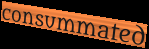
consummated